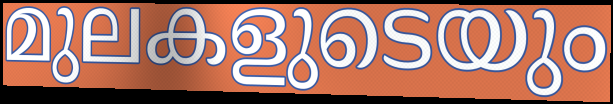
മുലകളുടെയും